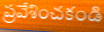
ప్రవేశించకండి